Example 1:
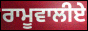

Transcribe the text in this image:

ਰਾਮੂਵਾਲੀਏ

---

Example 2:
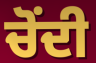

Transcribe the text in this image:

ਚੋੰਦੀ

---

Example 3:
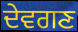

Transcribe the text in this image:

ਦੇਵਗਣ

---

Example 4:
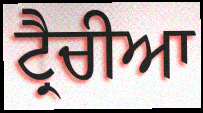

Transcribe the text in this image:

ਟ੍ਰੈਚੀਆ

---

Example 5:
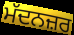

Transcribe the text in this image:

ਮੱਦਨਜ਼ਰ